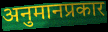
अनुमानप्रकार